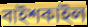
বাইশকাইল